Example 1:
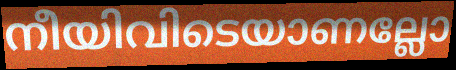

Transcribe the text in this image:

നീയിവിടെയാണല്ലോ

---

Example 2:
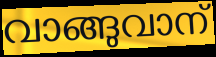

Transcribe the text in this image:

വാങ്ങുവാന്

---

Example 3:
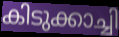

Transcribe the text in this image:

കിടുക്കാച്ചി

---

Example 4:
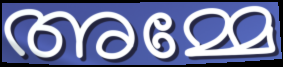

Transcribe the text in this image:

അമ്മേ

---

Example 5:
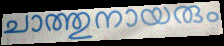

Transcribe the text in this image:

ചാത്തുനായരും